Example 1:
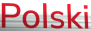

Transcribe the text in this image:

Polski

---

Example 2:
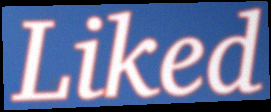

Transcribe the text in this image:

Liked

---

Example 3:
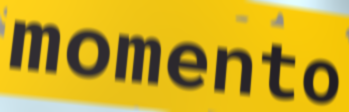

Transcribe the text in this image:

momento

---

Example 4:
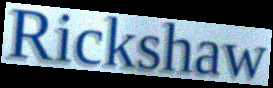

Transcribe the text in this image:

Rickshaw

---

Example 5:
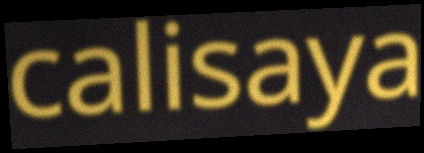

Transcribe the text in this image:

calisaya